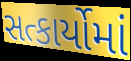
સત્કાર્યોમાં